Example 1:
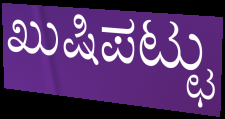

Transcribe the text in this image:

ಖುಷಿಪಟ್ಟು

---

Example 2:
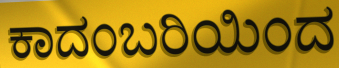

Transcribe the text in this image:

ಕಾದಂಬರಿಯಿಂದ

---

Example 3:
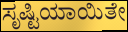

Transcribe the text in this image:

ಸೃಷ್ಟಿಯಾಯಿತೇ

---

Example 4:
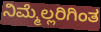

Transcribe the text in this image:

ನಿಮ್ಮೆಲ್ಲರಿಗಿಂತ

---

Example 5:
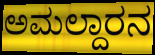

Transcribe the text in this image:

ಅಮಲ್ದಾರನ